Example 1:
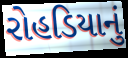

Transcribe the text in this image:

રોહડિયાનું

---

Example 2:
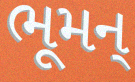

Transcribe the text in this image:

ભૂમન્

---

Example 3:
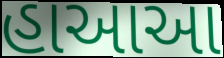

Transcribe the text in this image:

હાઆઆ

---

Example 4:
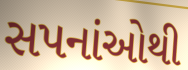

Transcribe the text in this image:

સપનાંઓથી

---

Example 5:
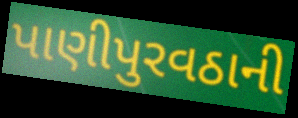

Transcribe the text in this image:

પાણીપુરવઠાની